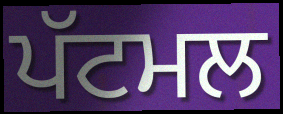
ਪੱਟਮਲ